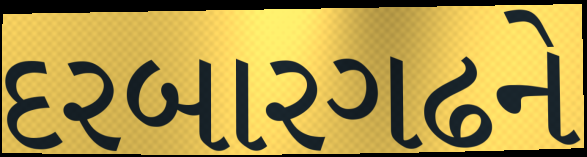
દરબારગઢને